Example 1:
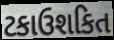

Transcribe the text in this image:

ટકાઉશકિત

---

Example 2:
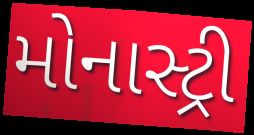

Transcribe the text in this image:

મોનાસ્ટ્રી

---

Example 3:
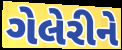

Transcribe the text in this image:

ગેલેરીને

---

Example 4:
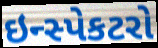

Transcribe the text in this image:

ઇન્સ્પેકટરો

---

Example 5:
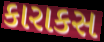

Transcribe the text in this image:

કારાકસ